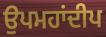
ਉਪਮਹਾਂਦੀਪ